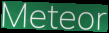
Meteor